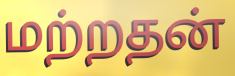
மற்றதன்